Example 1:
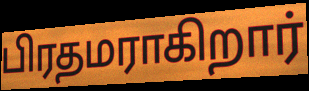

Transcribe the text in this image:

பிரதமராகிறார்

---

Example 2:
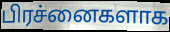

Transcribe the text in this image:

பிரச்னைகளாக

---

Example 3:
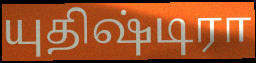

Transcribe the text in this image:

யுதிஷ்டிரா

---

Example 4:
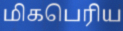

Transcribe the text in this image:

மிகபெரிய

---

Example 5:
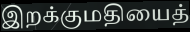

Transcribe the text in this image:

இறக்குமதியைத்